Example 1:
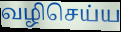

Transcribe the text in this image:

வழிசெய்ய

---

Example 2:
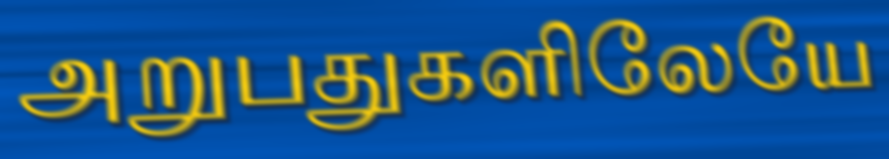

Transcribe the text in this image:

அறுபதுகளிலேயே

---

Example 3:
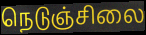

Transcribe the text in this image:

நெடுஞ்சிலை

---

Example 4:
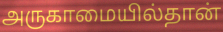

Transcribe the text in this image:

அருகாமையில்தான்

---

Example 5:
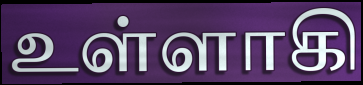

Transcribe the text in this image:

உள்ளாகி